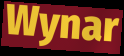
Wynar